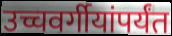
उच्चवर्गीयांपर्यंत